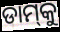
ଡାମ୍‍କୁ